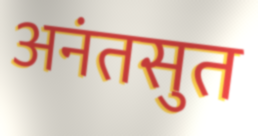
अनंतसुत